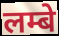
लम्बे